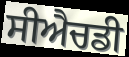
ਸੀਐਚਡੀ